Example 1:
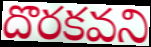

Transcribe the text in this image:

దొరకవని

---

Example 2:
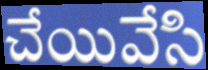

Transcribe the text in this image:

చేయివేసి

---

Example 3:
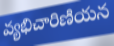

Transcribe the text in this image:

వ్యభిచారిణియన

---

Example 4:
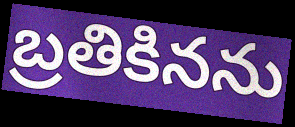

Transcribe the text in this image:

బ్రతికినను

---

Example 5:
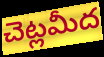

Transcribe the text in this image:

చెట్లమీద